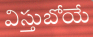
విస్తుబోయే